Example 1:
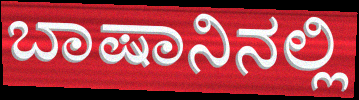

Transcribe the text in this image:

ಬಾಷಾನಿನಲ್ಲಿ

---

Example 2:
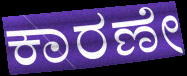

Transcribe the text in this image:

ಕಾರಣೇ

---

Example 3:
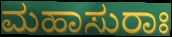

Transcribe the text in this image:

ಮಹಾಸುರಾಃ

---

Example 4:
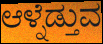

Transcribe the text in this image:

ಆಳ್ನೆಡ್ತುವ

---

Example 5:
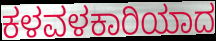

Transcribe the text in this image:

ಕಳವಳಕಾರಿಯಾದ